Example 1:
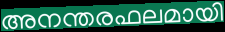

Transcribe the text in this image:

അനന്തരഫലമായി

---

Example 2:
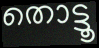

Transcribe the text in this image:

തൊട്ടൂ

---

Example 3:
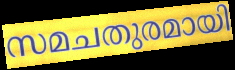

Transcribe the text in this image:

സമചതുരമായി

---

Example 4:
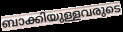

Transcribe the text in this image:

ബാക്കിയുള്ളവരുടെ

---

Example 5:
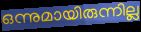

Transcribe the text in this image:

ഒന്നുമായിരുന്നില്ല